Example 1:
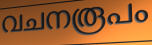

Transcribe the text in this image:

വചനരൂപം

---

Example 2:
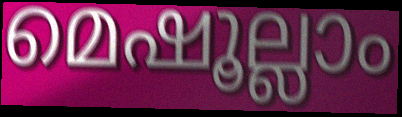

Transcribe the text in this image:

മെഷൂല്ലാം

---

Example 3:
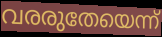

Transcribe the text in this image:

വരരുതേയെന്ന്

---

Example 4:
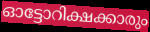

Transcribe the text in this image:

ഓട്ടോറിക്ഷക്കാരും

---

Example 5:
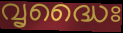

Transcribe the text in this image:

വൃദ്ധൈഃ